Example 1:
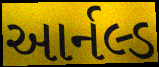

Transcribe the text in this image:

આર્નલ્ડ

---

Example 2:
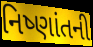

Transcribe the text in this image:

નિષ્ણાંતની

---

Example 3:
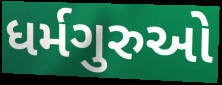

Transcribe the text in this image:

ધર્મગુરુઓ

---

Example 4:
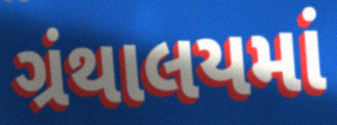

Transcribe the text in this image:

ગ્રંથાલયમાં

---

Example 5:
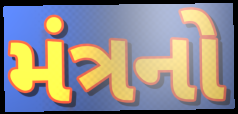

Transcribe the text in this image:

મંત્રનો